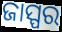
ଜାସ୍ପର